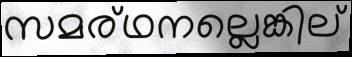
സമര്ഥനല്ലെങ്കില്